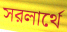
সরলার্থে